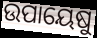
ଉପାୟେଷୁ